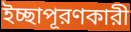
ইচ্ছাপূরণকারী